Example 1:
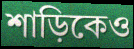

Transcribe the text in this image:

শাড়িকেও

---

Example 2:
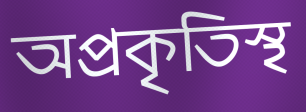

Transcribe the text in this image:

অপ্রকৃতিস্থ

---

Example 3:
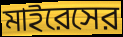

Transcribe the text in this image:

মাইরেসের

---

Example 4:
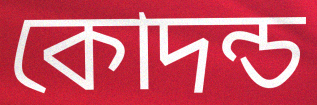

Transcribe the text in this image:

কোদন্ড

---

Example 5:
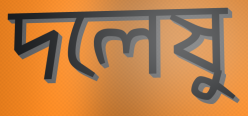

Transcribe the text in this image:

দলেষু